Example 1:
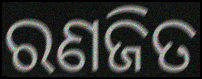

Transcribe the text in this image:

ରଣଜିତ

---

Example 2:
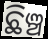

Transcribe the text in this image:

ଛିଞ୍ଚ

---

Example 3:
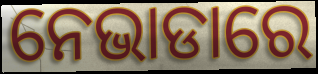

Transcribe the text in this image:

ନେଭାଡାରେ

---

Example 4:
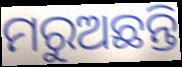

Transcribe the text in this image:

ମରୁଅଛନ୍ତି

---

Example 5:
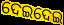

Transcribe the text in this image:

ଦେଇଦେଇ